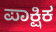
ಪಾಕ್ಷಿಕ